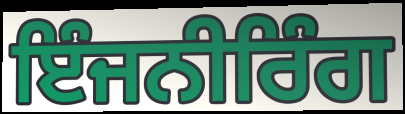
ਇੰਜਨੀਰਿੰਗ